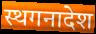
स्थगनादेश